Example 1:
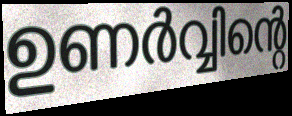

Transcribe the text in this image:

ഉണർവ്വിന്റെ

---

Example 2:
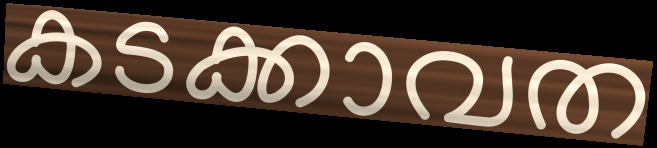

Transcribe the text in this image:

കടക്കാവത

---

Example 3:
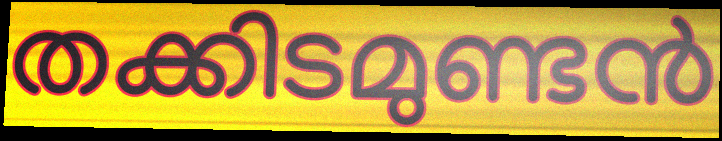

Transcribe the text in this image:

തക്കിടമുണ്ടൻ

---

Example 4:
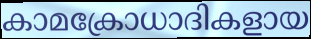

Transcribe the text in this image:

കാമക്രോധാദികളായ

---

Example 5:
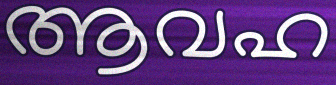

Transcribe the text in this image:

ആവഹ